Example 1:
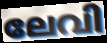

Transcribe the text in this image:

ലേവി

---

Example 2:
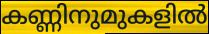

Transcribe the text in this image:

കണ്ണിനുമുകളിൽ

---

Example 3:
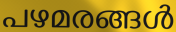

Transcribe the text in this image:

പഴമരങ്ങൾ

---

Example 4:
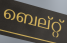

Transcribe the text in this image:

ബെല്റ്റ്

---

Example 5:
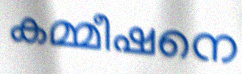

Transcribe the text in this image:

കമ്മീഷനെ